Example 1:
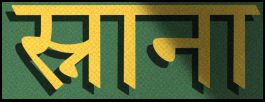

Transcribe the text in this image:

स्नाना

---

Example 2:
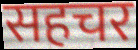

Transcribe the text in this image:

सहचर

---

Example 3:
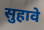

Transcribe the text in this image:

सुहावे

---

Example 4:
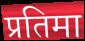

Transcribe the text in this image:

प्रतिमा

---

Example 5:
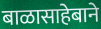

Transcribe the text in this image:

बाळासाहेबाने